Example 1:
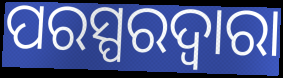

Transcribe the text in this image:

ପରସ୍ପରଦ୍ୱାରା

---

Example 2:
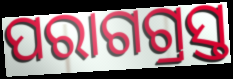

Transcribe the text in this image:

ପରାଗଗ୍ରସ୍ତ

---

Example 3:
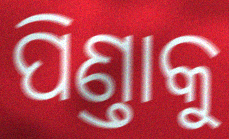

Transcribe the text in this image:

ପିଣ୍ତାକୁ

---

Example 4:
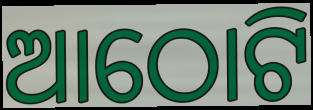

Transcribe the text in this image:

ଆଠୋଟି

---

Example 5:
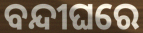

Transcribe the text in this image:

ବନ୍ଦୀଘରେ